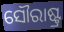
ସୌରାଷ୍ଟ୍ର